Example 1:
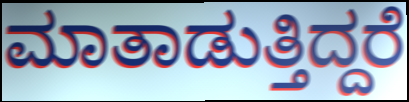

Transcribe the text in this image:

ಮಾತಾಡುತ್ತಿದ್ದರೆ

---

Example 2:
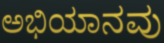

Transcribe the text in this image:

ಅಭಿಯಾನವು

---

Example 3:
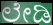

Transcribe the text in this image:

ಲೇಡಿ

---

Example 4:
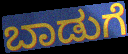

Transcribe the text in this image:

ಬಾಡುಗೆ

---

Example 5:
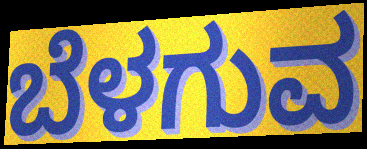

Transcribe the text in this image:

ಬೆಳಗುವ